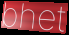
bhet